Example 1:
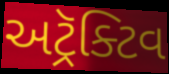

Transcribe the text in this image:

અટ્રૅક્ટિવ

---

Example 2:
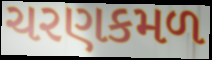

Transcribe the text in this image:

ચરણકમળ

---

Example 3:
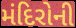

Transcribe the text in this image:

મંદિરોની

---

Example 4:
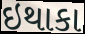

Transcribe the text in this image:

ઇથાકા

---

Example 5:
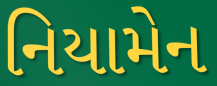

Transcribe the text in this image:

નિયામેન